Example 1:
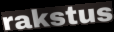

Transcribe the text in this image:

rakstus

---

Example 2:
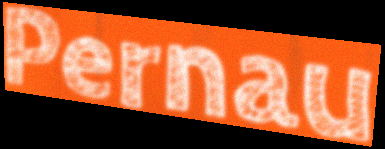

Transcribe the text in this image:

Pernau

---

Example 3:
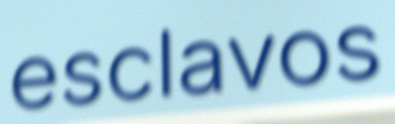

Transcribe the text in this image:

esclavos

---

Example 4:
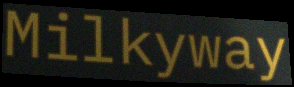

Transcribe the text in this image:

Milkyway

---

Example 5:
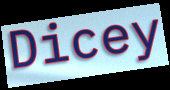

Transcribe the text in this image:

Dicey